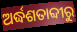
ଅର୍ଦ୍ଧଶତାବ୍ଦୀରୁ